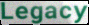
Legacy